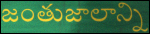
జంతుజాలాన్ని